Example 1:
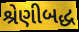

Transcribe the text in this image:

શ્રેણીબદ્ધ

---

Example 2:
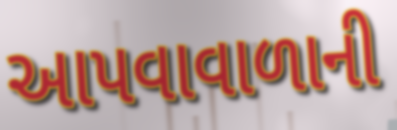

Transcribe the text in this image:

આપવાવાળાની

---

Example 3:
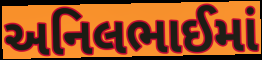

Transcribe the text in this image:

અનિલભાઈમાં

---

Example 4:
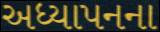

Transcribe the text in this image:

અધ્યાપનના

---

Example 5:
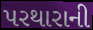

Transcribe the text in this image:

પરથારાની